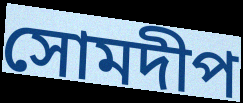
সোমদীপ